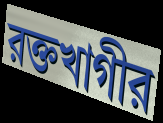
রক্তখাগীর